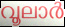
വൂലാർ